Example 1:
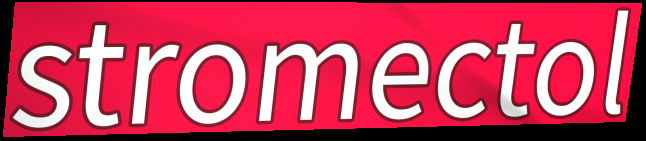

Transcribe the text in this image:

stromectol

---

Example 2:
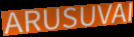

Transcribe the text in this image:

ARUSUVAI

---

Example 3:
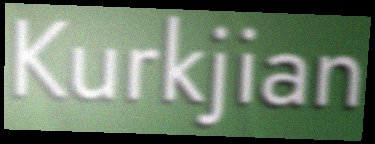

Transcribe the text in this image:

Kurkjian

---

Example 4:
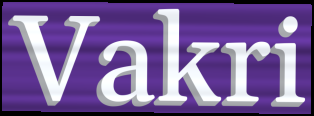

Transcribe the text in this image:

Vakri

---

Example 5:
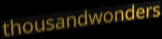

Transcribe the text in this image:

thousandwonders